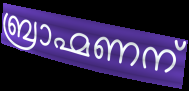
ബ്രാഹ്മണന്